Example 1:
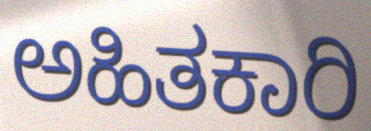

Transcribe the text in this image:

ಅಹಿತಕಾರಿ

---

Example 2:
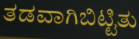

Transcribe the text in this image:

ತಡವಾಗಿಬಿಟ್ಟಿತು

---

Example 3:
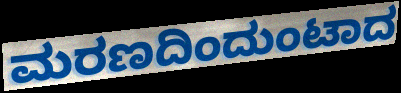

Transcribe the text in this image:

ಮರಣದಿಂದುಂಟಾದ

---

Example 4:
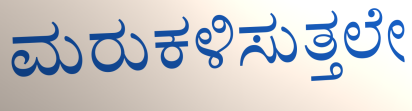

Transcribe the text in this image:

ಮರುಕಳಿಸುತ್ತಲೇ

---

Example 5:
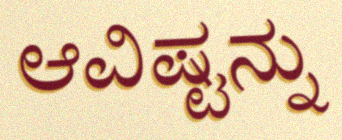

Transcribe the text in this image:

ಆವಿಷ್ಟನ್ನು